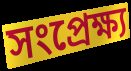
সংপ্রেক্ষ্য